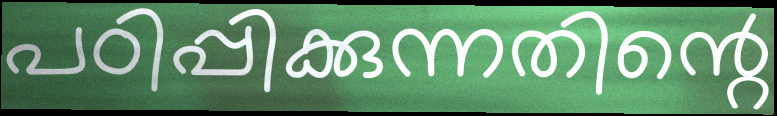
പഠിപ്പിക്കുന്നതിന്റെ